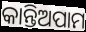
କାନ୍ତିଅପାମ